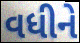
વધીને